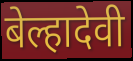
बेल्हादेवी